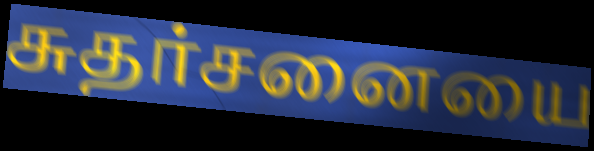
சுதர்சனையை